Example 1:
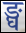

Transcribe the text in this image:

ङ्घ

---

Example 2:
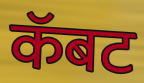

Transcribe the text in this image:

कॅबट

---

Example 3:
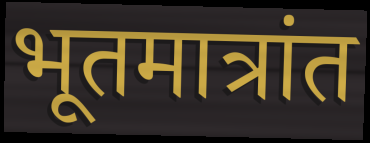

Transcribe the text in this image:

भूतमात्रांत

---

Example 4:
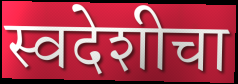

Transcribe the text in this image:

स्वदेशीचा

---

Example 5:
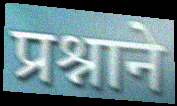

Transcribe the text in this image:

प्रश्नाने